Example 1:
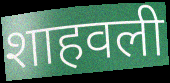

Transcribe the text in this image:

शाहवली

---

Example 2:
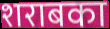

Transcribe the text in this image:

शराबका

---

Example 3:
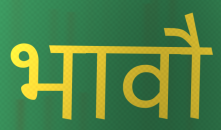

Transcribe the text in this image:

भावौ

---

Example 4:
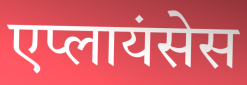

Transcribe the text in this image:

एप्लायंसेस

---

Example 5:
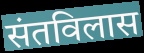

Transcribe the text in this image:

संतविलास